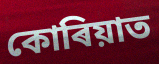
কোৰিয়াত